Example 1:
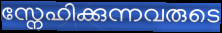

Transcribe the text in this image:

സ്നേഹിക്കുന്നവരുടെ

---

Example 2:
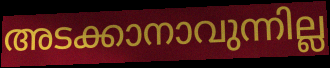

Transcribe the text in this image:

അടക്കാനാവുന്നില്ല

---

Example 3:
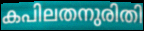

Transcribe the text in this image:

കപിലതനുരിതി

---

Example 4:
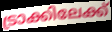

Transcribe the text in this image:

ട്രാക്കിലേക്ക്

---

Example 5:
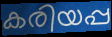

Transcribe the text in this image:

കരിയപ്പ